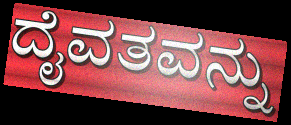
ದೈವತವನ್ನು